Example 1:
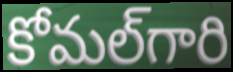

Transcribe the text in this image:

కోమల్‌గారి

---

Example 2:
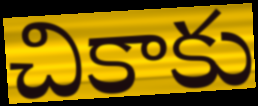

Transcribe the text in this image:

చికాకు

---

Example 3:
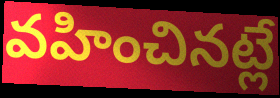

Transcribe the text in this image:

వహించినట్లే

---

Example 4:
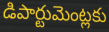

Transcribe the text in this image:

డిపార్టుమెంట్లకు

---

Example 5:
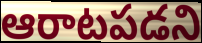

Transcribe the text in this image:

ఆరాటపడని